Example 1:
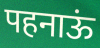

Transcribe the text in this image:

पहनाऊं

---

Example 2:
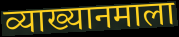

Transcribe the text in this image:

व्याख्यानमाला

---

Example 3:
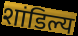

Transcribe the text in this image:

शांडिल्य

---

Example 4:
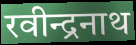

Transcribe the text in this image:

रवीन्द्रनाथ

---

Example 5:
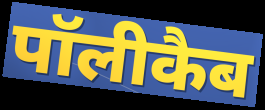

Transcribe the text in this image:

पॉलीकैब